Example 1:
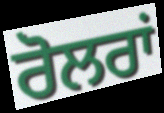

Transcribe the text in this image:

ਰੋਲਰਾਂ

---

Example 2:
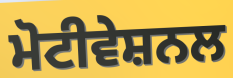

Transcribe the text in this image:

ਮੋਟੀਵੇਸ਼ਨਲ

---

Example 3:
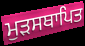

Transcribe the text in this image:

ਮੁੜਸਥਾਪਿਤ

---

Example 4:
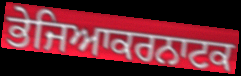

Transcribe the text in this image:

ਭੇਜਿਆਕਰਨਾਟਕ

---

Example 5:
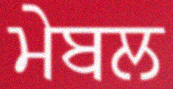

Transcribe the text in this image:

ਮੇਬਲ